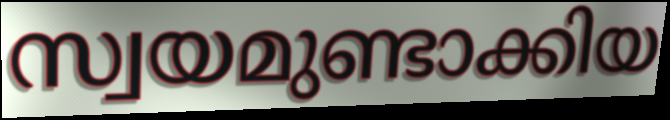
സ്വയമുണ്ടാക്കിയ